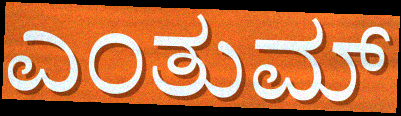
ಎಂತುಮ್